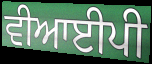
ਵੀਆਈਪੀ